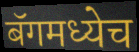
बॅगमध्येच